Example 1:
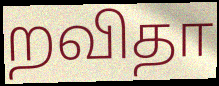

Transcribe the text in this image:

றவிதா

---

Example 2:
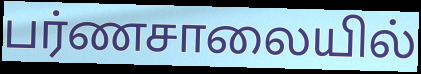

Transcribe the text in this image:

பர்ணசாலையில்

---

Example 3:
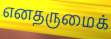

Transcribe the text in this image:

எனதருமைக்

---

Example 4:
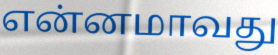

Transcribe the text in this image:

என்னமாவது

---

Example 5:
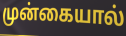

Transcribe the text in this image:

முன்கையால்